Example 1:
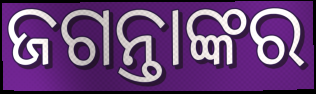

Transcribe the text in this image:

ଜଗନ୍ତାଙ୍କର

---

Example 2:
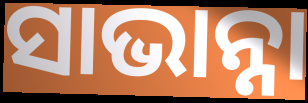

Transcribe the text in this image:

ସାଭାନ୍ନା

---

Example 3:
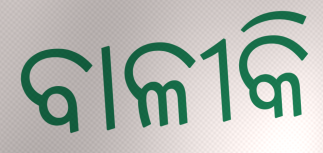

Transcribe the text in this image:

ବାଳୀକି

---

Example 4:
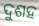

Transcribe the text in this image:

ଦୁଶହ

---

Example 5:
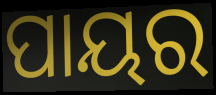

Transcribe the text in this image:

ପାୟର